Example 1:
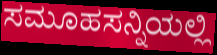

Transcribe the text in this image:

ಸಮೂಹಸನ್ನಿಯಲ್ಲಿ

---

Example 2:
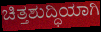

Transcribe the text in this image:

ಚಿತ್ತಶುದ್ಧಿಯಾಗಿ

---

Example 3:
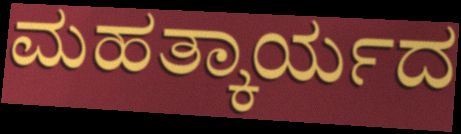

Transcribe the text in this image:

ಮಹತ್ಕಾರ್ಯದ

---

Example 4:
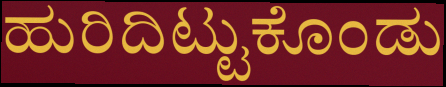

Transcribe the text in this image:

ಹುರಿದಿಟ್ಟುಕೊಂಡು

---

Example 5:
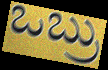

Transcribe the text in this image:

ಒಬ್ರು